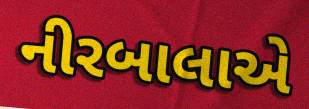
નીરબાલાએ